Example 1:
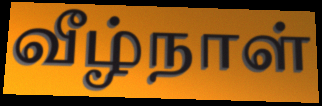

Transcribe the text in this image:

வீழ்நாள்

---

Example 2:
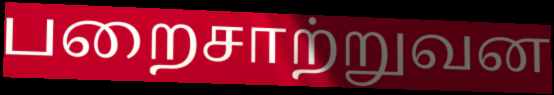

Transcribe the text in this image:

பறைசாற்றுவன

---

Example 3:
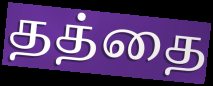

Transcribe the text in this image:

தத்தை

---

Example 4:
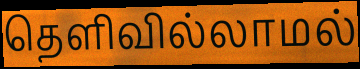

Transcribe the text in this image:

தெளிவில்லாமல்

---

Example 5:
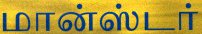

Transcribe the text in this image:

மான்ஸ்டர்